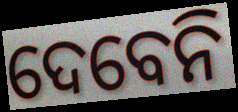
ଦେବେନି